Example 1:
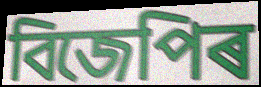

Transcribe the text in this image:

বিজেপিৰ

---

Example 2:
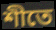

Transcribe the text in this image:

শীতে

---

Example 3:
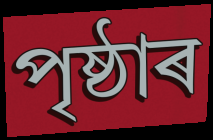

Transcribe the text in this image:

পৃষ্ঠাৰ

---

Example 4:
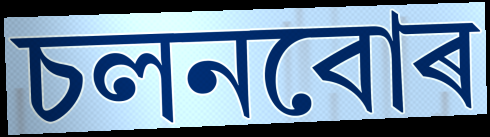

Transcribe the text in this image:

চলনবোৰ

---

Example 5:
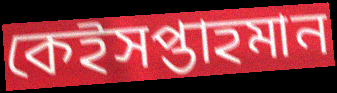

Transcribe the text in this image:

কেইসপ্তাহমান